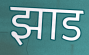
झाड